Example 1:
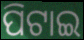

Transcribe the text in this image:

ପିଟାଇ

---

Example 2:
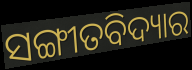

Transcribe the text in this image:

ସଙ୍ଗୀତବିଦ୍ୟାର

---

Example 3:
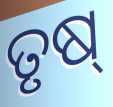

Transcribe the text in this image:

ତୃଷ୍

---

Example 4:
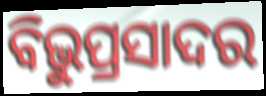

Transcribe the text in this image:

ବିଭୁପ୍ରସାଦର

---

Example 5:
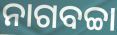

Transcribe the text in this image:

ନାଗବଚ୍ଚା